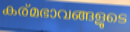
കര്മഭാവങ്ങളുടെ